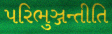
પરિભુઞ્જન્તીતિ